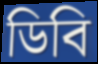
ডিবি